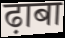
ढ़ाबा